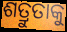
ଶତ୍ରୁତାକୁ